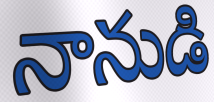
నానుడి